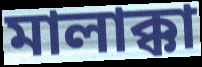
মালাক্কা